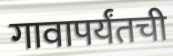
गावापर्यंतची